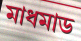
মাধমাড